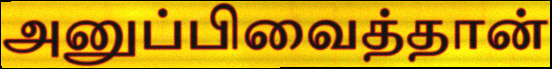
அனுப்பிவைத்தான்